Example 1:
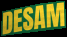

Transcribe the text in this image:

DESAM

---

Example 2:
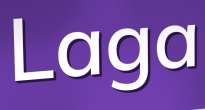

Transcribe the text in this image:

Laga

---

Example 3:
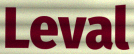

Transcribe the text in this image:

Leval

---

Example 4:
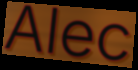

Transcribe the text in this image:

Alec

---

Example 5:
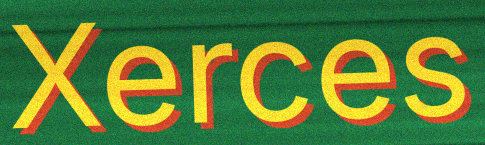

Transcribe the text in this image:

Xerces